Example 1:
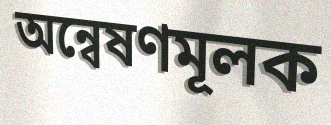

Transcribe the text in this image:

অন্বেষণমূলক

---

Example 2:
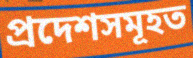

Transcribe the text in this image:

প্ৰদেশসমূহত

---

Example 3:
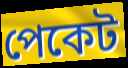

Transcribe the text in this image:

পেকেট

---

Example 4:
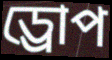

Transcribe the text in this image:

ড্ৰোপ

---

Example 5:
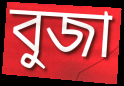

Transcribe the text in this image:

বুজা